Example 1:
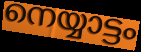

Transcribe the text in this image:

നെയ്യാട്ടം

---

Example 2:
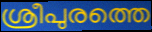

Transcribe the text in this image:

ശ്രീപുരത്തെ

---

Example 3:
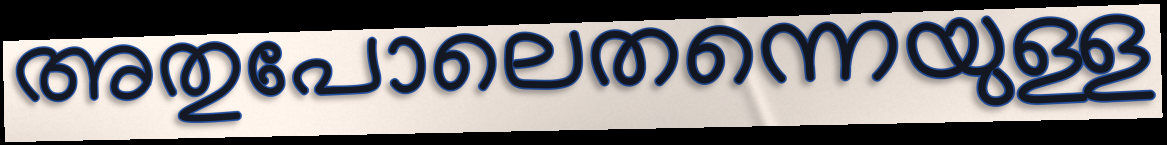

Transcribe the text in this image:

അതുപോലെതന്നെയുള്ള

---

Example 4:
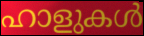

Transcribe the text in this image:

ഹാളുകൾ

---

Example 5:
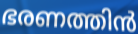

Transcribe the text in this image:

ഭരണത്തിൻ